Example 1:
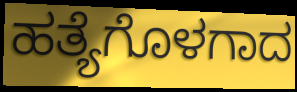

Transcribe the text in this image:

ಹತ್ಯೆಗೊಳಗಾದ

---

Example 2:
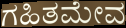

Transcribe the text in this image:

ಗಹಿತಮೇವ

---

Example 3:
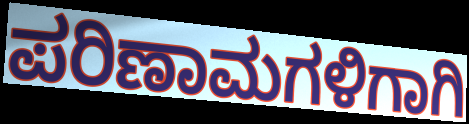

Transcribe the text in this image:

ಪರಿಣಾಮಗಳಿಗಾಗಿ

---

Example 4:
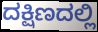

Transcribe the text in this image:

ದಕ್ಷಿಣದಲ್ಲಿ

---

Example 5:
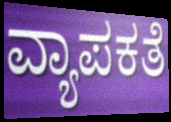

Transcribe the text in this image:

ವ್ಯಾಪಕತೆ